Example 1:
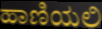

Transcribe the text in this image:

ಹಾಣಿಯಲಿ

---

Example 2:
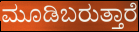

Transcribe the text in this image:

ಮೂಡಿಬರುತ್ತಾರೆ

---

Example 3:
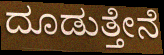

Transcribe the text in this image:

ದೂಡುತ್ತೇನೆ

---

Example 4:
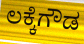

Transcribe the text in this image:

ಲಕ್ಕೆಗೌಡ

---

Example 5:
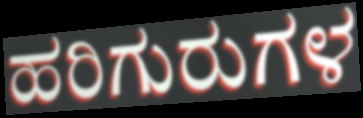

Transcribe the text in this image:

ಹರಿಗುರುಗಳ